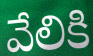
వేలికి